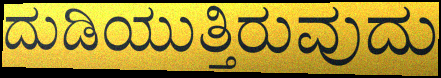
ದುಡಿಯುತ್ತಿರುವುದು